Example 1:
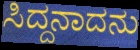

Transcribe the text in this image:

ಸಿದ್ದನಾದನು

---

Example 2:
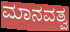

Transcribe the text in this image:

ಮಾನವತ್ವ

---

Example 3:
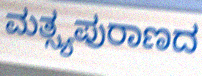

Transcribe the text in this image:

ಮತ್ಸ್ಯಪುರಾಣದ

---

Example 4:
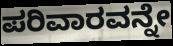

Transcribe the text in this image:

ಪರಿವಾರವನ್ನೇ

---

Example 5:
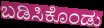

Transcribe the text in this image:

ಬಡಿಸಿಕೊಂಡು